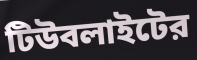
টিউবলাইটের